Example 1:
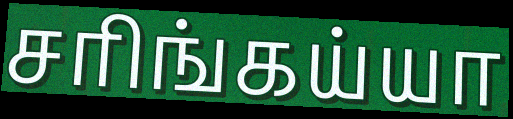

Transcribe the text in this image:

சரிங்கய்யா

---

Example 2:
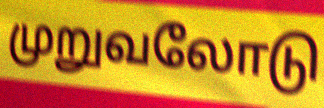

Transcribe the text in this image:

முறுவலோடு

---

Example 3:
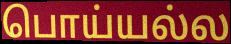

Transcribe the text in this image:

பொய்யல்ல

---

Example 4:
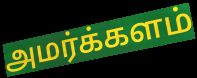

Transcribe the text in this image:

அமர்க்களம்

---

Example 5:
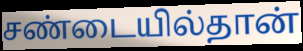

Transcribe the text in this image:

சண்டையில்தான்